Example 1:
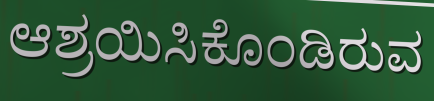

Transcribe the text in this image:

ಆಶ್ರಯಿಸಿಕೊಂಡಿರುವ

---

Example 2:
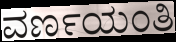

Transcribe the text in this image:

ವರ್ಣಯಂತಿ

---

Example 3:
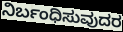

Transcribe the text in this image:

ನಿರ್ಬಂಧಿಸುವುದರ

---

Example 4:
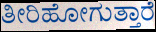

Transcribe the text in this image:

ತೀರಿಹೋಗುತ್ತಾರೆ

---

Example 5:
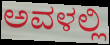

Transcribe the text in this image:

ಅವಳಲ್ಲಿ